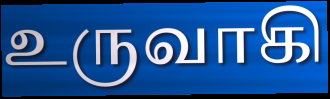
உருவாகி